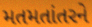
મતમતાંતરને